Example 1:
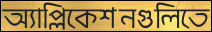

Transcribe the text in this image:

অ্যাপ্লিকেশনগুলিতে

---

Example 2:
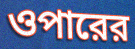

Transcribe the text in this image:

ওপারের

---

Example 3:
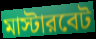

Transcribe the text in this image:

মাস্টারবেট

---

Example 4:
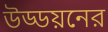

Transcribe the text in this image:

উড্ডয়নের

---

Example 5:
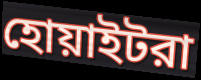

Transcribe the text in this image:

হোয়াইটরা